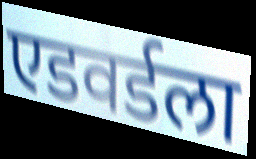
एडवर्डला